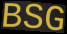
BSG